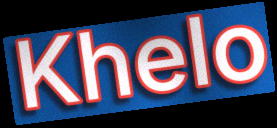
Khelo